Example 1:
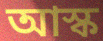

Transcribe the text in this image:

আস্ক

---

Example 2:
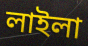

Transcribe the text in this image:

লাইলা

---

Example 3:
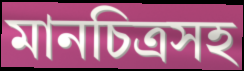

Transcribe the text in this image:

মানচিত্রসহ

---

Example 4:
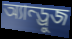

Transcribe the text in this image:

অ্যান্ড্রুজ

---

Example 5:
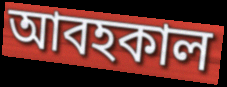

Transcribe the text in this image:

আবহকাল